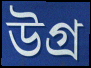
উগ্র